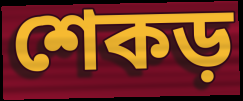
শেকড়